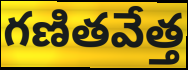
గణితవేత్త